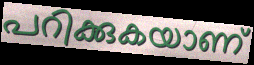
പറിക്കുകയാണ്